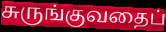
சுருங்குவதைப்